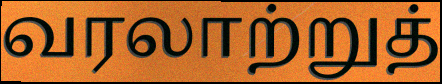
வரலாற்றுத்